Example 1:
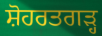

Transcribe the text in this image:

ਸ਼ੋਹਰਤਗੜ੍ਹ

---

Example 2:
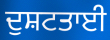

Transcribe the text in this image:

ਦੁਸ਼ਟਤਾਈ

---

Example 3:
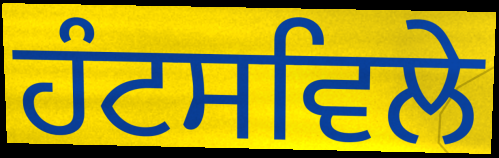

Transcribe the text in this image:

ਹੰਟਸਵਿਲੇ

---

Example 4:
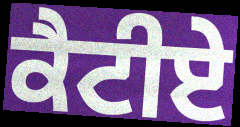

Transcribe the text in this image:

ਕੈਟੀਏ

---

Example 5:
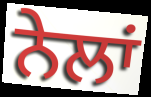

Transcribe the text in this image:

ਨੇਲਾਂ